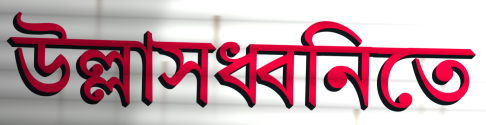
উল্লাসধ্বনিতে